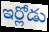
ఇర్లోడు